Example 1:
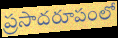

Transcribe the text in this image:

ప్రసాదరూపంలో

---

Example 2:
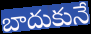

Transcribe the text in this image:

బాదుకునే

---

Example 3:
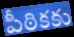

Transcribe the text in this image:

పీఠికకు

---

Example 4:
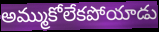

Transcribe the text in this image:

అమ్ముకోలేకపోయాడు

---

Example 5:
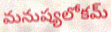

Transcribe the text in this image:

మనుష్యలోకమ్